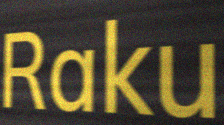
Raku